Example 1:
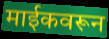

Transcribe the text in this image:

माईकवरून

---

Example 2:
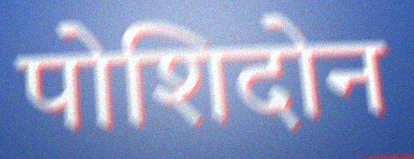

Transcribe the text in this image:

पोशिदोन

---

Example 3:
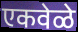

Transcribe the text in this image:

एकवेळे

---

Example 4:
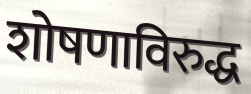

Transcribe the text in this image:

शोषणाविरुद्ध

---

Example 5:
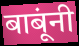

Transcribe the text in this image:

बाबूंनी